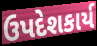
ઉપદેશકાર્ય